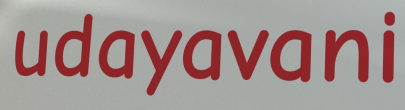
udayavani